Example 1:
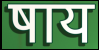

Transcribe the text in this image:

षाय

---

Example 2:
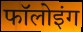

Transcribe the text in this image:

फॉलोइंग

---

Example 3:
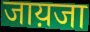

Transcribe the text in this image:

जाय़जा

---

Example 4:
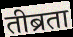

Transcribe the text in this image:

तीब्रता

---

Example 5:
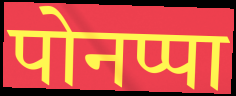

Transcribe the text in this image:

पोनप्‍पा